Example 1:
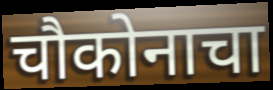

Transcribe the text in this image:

चौकोनाचा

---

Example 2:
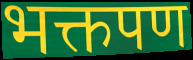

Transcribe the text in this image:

भक्तपण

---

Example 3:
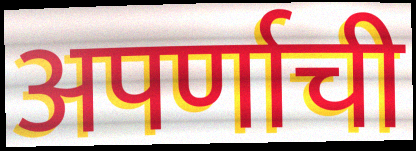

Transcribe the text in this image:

अपर्णाची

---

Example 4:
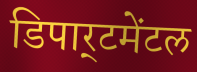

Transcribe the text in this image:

डिपार्टमेंटल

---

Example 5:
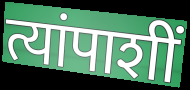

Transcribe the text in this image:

त्यांपाशीं